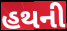
હથની